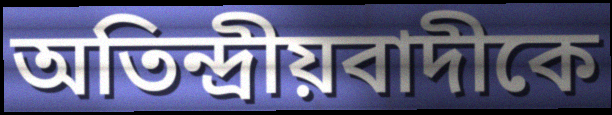
অতিন্দ্রীয়বাদীকে